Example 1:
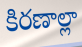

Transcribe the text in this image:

కిరణాల్లా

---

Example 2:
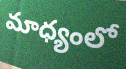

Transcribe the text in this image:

మాధ్యంలో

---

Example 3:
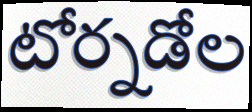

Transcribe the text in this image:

టోర్నడోల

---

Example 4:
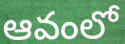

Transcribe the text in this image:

ఆవంలో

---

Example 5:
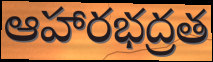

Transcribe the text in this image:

ఆహారభద్రత